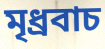
মৃধ্রবাচ